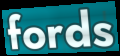
fords